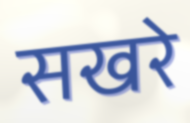
सखरे